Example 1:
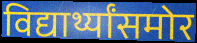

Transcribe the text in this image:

विद्यार्थ्यांसमोर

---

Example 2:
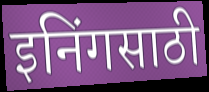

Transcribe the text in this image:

इनिंगसाठी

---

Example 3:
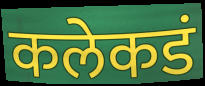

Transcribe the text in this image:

कलेकडं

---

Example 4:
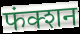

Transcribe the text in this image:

फंक्शन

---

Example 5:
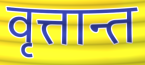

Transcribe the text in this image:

वृत्तान्त